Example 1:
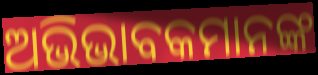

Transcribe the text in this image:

ଅଭିଭାବକମାନଙ୍କ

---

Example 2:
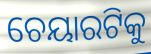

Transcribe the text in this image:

ଚେୟାରଟିକୁ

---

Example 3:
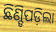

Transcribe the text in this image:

ଛିଣ୍ଡିପଡ଼ିଲା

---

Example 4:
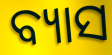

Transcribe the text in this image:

ବ୍ୟାସ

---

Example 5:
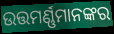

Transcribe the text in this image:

ଉତ୍ତମର୍ଣ୍ଣମାନଙ୍କର